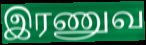
இரணுவ